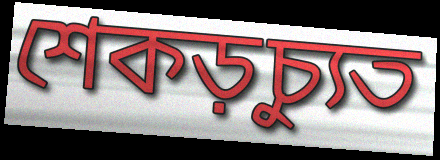
শেকড়চ্যুত